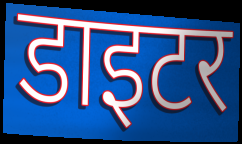
डाइटर